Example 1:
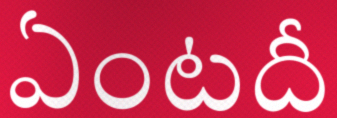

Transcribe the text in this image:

ఏంటదీ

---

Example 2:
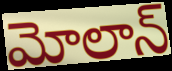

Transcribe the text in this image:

మోలాన్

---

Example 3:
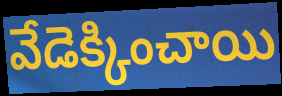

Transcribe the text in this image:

వేడెక్కించాయి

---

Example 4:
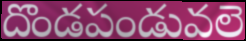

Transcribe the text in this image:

దొండపండువలె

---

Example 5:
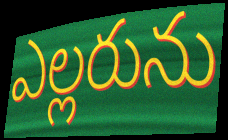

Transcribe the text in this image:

ఎల్లరును